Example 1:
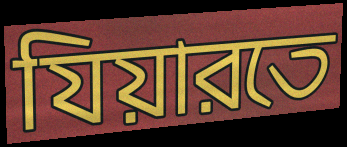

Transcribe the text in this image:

যিয়ারতে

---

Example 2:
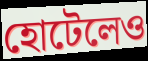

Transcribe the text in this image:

হোটেলেও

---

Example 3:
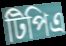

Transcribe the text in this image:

টিপিএ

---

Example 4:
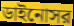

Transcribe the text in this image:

ডাইনোসর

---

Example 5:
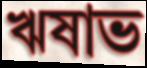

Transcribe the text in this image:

ঋষাভ